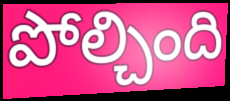
పోల్చింది